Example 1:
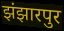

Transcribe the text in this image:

झंझारपुर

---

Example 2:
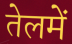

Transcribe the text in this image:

तेलमें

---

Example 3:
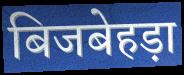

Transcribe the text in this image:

बिजबेहड़ा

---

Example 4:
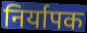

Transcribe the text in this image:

निर्यापक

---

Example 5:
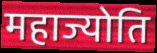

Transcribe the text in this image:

महाज्योति